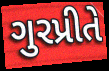
ગુરપ્રીતે